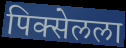
पिक्सेलला